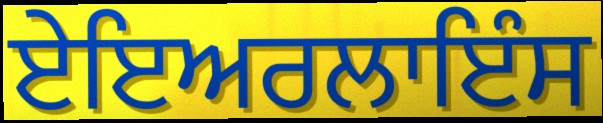
ਏਇਅਰਲਾਇੰਸ